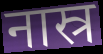
नास्र